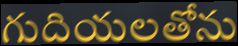
గుదియలతోను